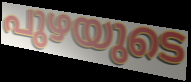
പുഴയുടെ